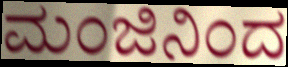
ಮಂಜಿನಿಂದ